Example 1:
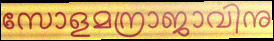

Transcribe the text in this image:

സോളമന്രാജാവിനു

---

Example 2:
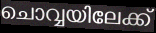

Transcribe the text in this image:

ചൊവ്വയിലേക്ക്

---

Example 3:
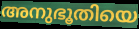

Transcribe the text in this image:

അനുഭൂതിയെ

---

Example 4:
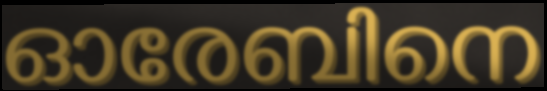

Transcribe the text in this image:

ഓരേബിനെ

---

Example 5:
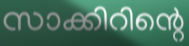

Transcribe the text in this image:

സാക്കിറിന്റെ